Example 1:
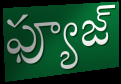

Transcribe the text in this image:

ఫ్యూజ్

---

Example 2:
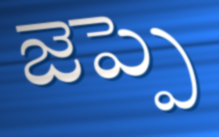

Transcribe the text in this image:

జెప్పె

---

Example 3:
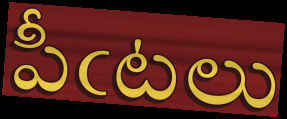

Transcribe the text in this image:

పీఁటలు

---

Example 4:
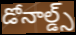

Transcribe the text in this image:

డోనాల్డ్స్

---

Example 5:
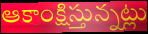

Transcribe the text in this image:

ఆకాంక్షిస్తున్నట్లు